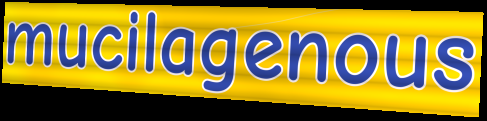
mucilagenous